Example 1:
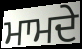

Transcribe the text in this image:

ਮਾਮਦੇ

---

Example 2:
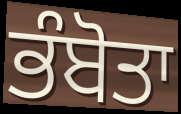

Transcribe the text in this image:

ਭੰਬੋਤਾ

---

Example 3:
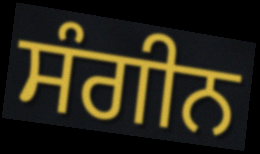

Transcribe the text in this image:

ਸੰਗੀਨ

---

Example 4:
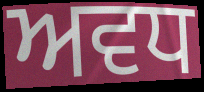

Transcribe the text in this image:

ਅਵਧ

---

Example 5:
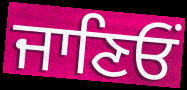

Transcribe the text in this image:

ਜਾਣਿਓਂ